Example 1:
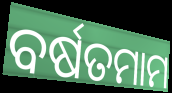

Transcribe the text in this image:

ବର୍ଷତମାମ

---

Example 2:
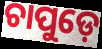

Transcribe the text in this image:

ଚାପୁଡ଼େ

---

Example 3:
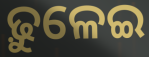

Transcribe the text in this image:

ଢ଼ୁଳେଇ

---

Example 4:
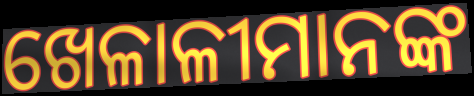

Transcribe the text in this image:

ଖେଳାଳୀମାନଙ୍କ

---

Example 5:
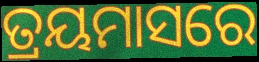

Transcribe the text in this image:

ତ୍ରୟମାସରେ